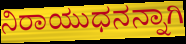
ನಿರಾಯುಧನನ್ನಾಗಿ